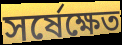
সর্ষেক্ষেত